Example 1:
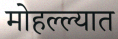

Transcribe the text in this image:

मोहल्ल्यात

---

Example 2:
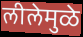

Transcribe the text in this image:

लीलेमुळे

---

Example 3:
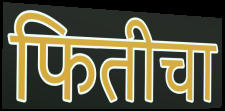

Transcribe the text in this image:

फितीचा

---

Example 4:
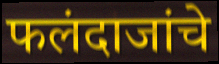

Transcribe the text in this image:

फलंदाजांचे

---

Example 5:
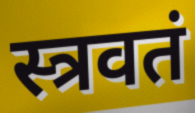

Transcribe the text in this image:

स्त्रवतं